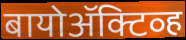
बायोॲक्टिव्ह